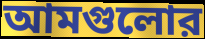
আমগুলোর